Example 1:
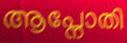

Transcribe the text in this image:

ആപ്നോതി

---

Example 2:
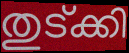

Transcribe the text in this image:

തുട്ക്കി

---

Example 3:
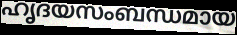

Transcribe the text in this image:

ഹൃദയസംബന്ധമായ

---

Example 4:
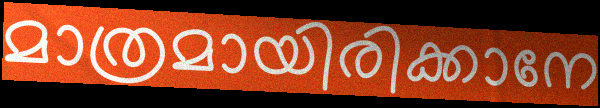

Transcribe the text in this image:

മാത്രമായിരിക്കാനേ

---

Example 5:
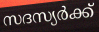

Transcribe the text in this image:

സദസ്യർക്ക്